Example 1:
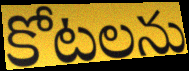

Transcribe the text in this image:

కోటలను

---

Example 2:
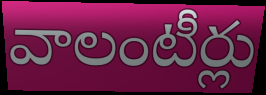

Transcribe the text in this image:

వాలంటీర్లు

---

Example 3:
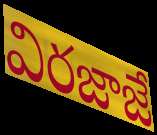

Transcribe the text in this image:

విరజాజే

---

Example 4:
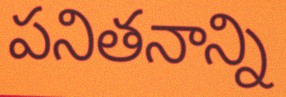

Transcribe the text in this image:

పనితనాన్ని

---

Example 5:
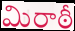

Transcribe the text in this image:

మిరాఠీ